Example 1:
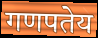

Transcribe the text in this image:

गणपतेय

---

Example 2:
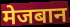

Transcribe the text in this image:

मेजबान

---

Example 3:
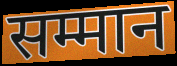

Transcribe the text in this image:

सम्मान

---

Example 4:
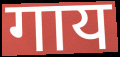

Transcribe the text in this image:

गाय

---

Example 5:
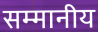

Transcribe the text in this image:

सम्मानीय